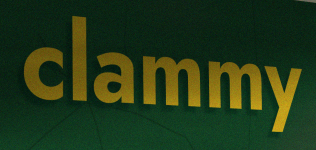
clammy